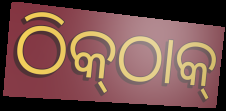
ଠିକ୍‌ଠାକ୍